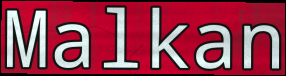
Malkan